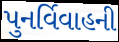
પુનર્વિવાહની